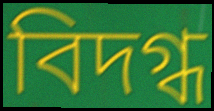
বিদগ্ধ